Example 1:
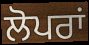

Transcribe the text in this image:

ਲੋਪਰਾਂ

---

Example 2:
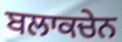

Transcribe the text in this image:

ਬਲਾਕਚੇਨ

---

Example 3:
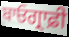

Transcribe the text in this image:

ਬਾਓਗ੍ਰਾਫ਼ੀ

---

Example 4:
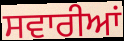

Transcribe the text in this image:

ਸਵਾਰੀਆਂ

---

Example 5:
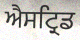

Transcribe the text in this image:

ਐਸਟ੍ਰਿਡ